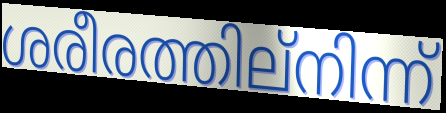
ശരീരത്തില്നിന്ന്